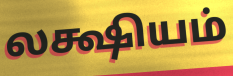
லக்ஷியம்